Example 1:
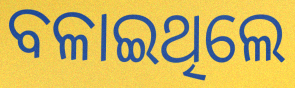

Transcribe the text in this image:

ବଳାଇଥିଲେ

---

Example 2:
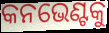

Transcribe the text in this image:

କନଭେଣ୍ଟକୁ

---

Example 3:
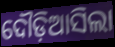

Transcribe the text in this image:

ଦୌଡ଼ିଆସିଲା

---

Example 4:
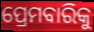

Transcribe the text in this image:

ପ୍ରେମବାରିକୁ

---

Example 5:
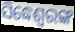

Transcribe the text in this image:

ସିଦ୍ଧେଶ୍ୱରଙ୍କ